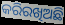
କରିରଖିଅଛି